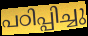
പഠിപ്പിച്ചു